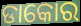
ଡାକୋର